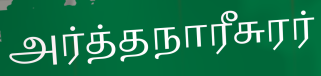
அர்த்தநாரீசுரர்